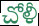
చోళీ